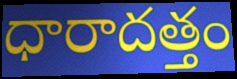
ధారాదత్తం